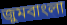
জুমবাংলা